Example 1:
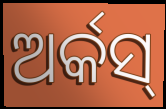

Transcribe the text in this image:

ଅର୍କସ୍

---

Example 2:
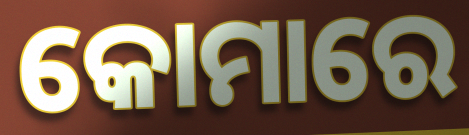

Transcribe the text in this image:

କୋମାରେ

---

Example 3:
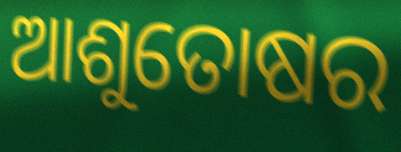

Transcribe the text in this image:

ଆଶୁତୋଷର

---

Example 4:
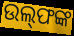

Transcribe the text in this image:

ଉଲ୍‌ଫଙ୍କ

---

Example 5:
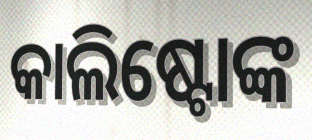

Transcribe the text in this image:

କାଲିଷ୍ଟୋଙ୍କ